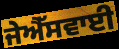
ਜੇਐੱਸਵਾਈ